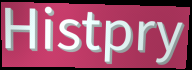
Histpry